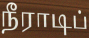
நீராடிப்